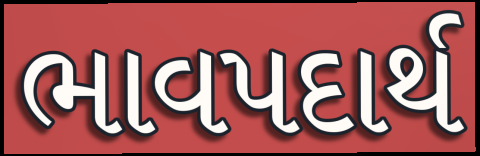
ભાવપદાર્થ